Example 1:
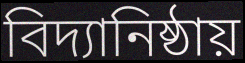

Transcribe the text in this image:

বিদ্যানিষ্ঠায়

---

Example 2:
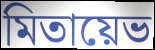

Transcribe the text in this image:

মিতায়েভ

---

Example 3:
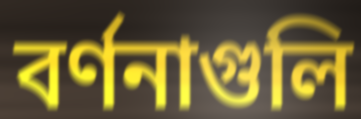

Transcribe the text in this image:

বর্ণনাগুলি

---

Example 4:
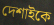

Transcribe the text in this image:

দেশাইকে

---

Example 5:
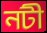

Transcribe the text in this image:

নটী